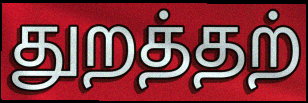
துறத்தற்